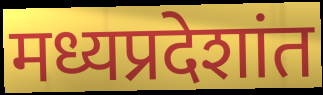
मध्यप्रदेशांत